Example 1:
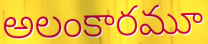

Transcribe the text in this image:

అలంకారమూ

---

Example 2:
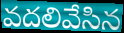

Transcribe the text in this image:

వదలివేసిన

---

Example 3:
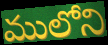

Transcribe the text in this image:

ములోని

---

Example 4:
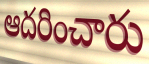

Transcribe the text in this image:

ఆదరించారు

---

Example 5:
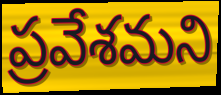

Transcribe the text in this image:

ప్రవేశమని